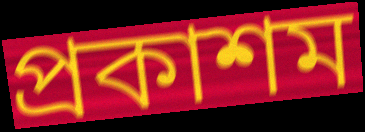
প্ৰকাশম